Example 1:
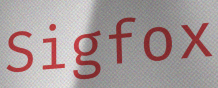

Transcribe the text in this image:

Sigfox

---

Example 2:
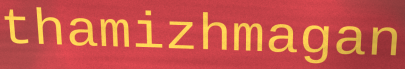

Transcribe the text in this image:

thamizhmagan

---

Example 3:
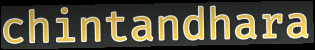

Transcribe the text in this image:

chintandhara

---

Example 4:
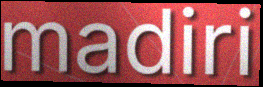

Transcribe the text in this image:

madiri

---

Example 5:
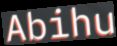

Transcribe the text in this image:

Abihu